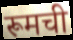
रूमची